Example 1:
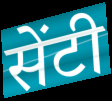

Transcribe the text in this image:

सेंटी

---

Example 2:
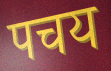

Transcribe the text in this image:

पचय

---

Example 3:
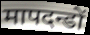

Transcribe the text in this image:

मापदन्डों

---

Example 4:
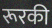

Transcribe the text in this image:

रूरकी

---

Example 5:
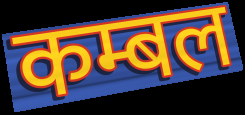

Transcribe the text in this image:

कम्बल